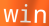
win